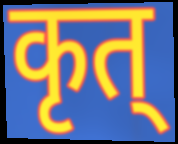
कृत्